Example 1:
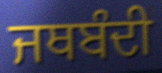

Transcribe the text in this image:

ਜਥਬੰਦੀ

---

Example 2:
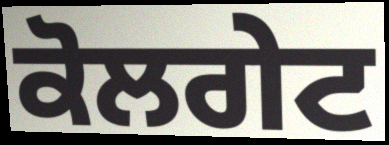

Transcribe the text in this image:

ਕੋਲਗੇਟ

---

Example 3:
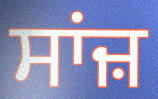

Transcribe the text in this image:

ਸਾਂਜ਼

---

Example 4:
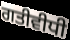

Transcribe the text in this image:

ਗਤੀਵੀਧੀ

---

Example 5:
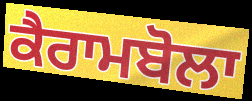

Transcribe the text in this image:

ਕੈਰਾਮਬੋਲਾ